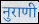
नुराणी